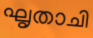
ഘൃതാചി